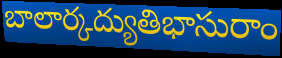
బాలార్కద్యుతిభాసురాం